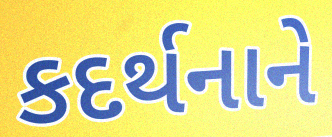
કદર્થનાને